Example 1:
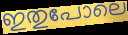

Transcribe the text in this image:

ഇതുപോലെ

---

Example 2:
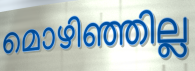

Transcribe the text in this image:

മൊഴിഞ്ഞില്ല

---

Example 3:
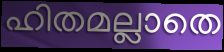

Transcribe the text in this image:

ഹിതമല്ലാതെ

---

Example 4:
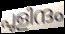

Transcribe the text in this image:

പുളിന്ദം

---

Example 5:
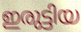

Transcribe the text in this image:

ഇരുട്ടിയ